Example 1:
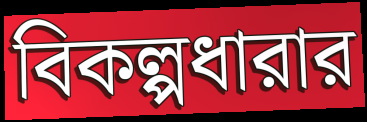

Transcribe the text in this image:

বিকল্পধারার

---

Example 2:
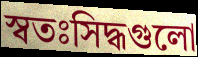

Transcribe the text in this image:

স্বতঃসিদ্ধগুলো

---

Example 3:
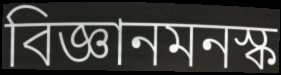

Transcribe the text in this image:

বিজ্ঞানমনস্ক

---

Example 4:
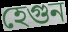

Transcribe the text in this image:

হেগুন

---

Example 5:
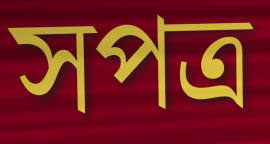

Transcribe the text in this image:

সপত্র